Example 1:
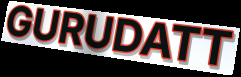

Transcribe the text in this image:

GURUDATT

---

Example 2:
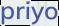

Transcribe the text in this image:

priyo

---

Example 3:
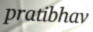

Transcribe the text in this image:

pratibhav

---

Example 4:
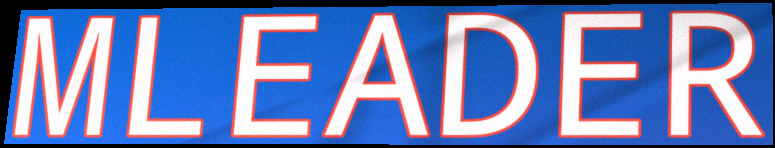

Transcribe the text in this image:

MLEADER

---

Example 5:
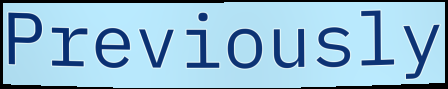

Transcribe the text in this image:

Previously